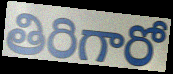
తిరిగారో